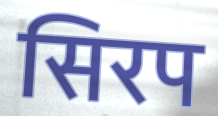
सिरप